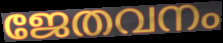
ജേതവനം